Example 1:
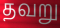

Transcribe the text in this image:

தவறு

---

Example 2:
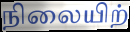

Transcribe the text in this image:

நிலையிற்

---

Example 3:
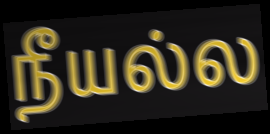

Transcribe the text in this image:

நீயல்ல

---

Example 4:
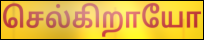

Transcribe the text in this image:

செல்கிறாயோ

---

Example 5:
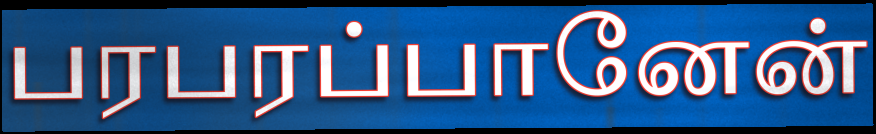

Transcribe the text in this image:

பரபரப்பானேன்